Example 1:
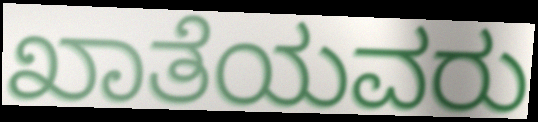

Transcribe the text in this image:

ಖಾತೆಯವರು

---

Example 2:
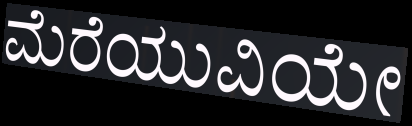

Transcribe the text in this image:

ಮೆರೆಯುವಿಯೇ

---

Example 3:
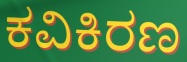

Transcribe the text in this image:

ಕವಿಕಿರಣ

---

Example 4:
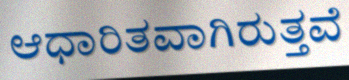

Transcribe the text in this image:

ಆಧಾರಿತವಾಗಿರುತ್ತವೆ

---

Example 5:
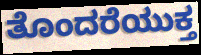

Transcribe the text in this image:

ತೊಂದರೆಯುಕ್ತ